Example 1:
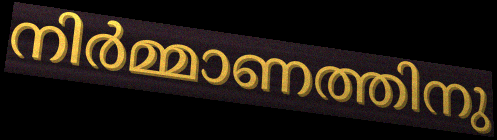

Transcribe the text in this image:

നിർമ്മാണത്തിനു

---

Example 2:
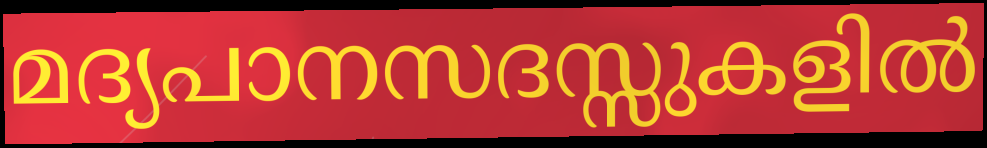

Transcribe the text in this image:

മദ്യപാനസദസ്സുകളിൽ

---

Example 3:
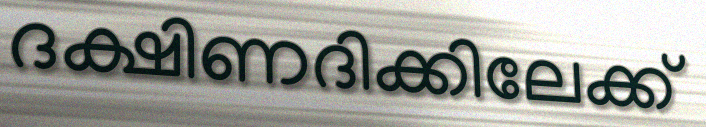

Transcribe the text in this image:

ദക്ഷിണദിക്കിലേക്ക്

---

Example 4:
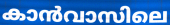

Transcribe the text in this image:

കാൻവാസിലെ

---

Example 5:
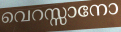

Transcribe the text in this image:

വെറസ്സാനോ